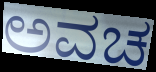
ಅವಚ